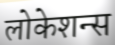
लोकेशन्स